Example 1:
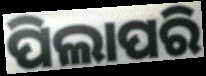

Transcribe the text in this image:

ପିଲାପରି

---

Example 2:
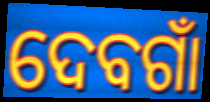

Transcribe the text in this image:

ଦେବଗାଁ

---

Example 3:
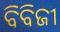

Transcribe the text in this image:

ବିବିଜୀ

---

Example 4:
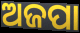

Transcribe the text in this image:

ଅଜପା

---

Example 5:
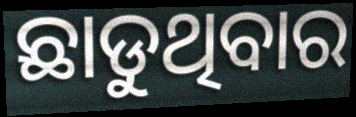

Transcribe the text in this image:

ଛାଡୁଥିବାର